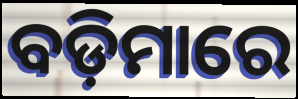
ବଡ଼ିମାରେ